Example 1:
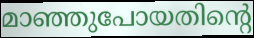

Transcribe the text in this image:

മാഞ്ഞുപോയതിന്റെ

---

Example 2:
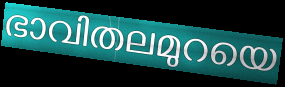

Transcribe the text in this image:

ഭാവിതലമുറയെ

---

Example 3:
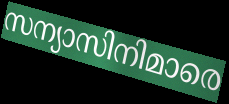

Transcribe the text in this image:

സന്യാസിനിമാരെ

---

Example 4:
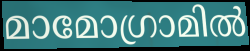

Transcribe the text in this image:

മാമോഗ്രാമിൽ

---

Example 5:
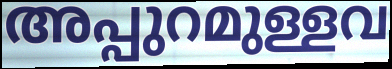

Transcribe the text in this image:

അപ്പുറമുള്ളവ